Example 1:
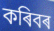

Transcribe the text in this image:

কৰিবৰ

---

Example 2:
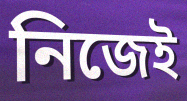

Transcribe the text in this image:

নিজেই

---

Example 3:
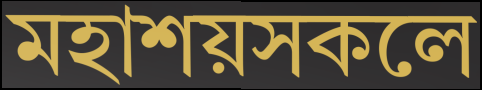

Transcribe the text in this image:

মহাশয়সকলে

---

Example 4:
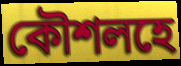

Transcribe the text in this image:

কৌশলহে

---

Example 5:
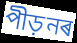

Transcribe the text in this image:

পীড়নৰ